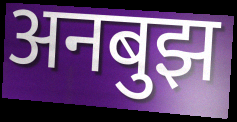
अनबुझ